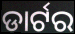
ଡାର୍ଟର